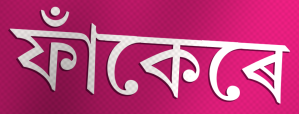
ফাঁকেৰে